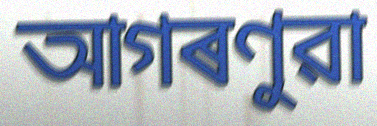
আগৰণুৱা